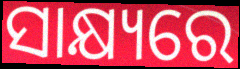
ସାକ୍ଷ୍ୟରେ